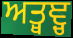
ਅਤ੍ਥਞ੍ਚ